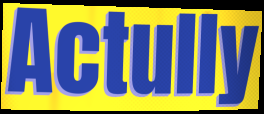
Actully